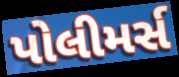
પોલીમર્સ